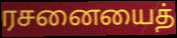
ரசனையைத்